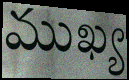
ముఖ్య